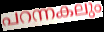
പറന്നകലും